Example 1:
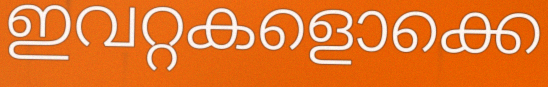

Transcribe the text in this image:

ഇവറ്റകളൊക്കെ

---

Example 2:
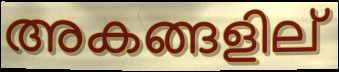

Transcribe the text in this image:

അകങ്ങളില്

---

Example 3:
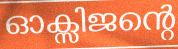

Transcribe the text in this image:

ഓക്സിജന്റെ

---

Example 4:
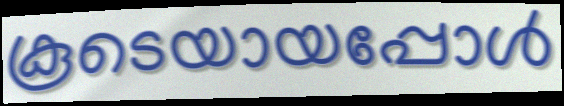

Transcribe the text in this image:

കൂടെയായപ്പോൾ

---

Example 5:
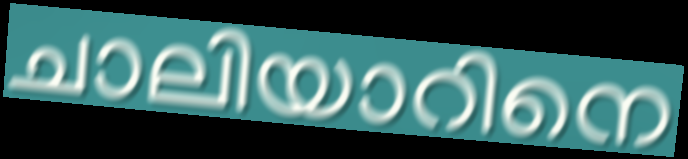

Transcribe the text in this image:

ചാലിയാറിനെ